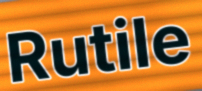
Rutile